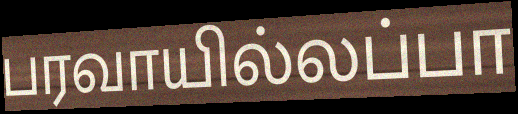
பரவாயில்லப்பா